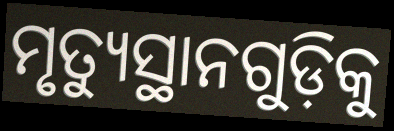
ମୃତ୍ୟୁସ୍ଥାନଗୁଡ଼ିକୁ